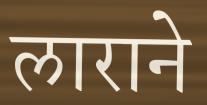
लाराने